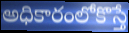
అధికారంలోకొస్తే